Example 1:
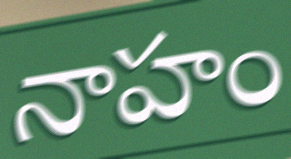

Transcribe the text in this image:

నాహం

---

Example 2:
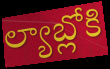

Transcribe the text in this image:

ల్యాబ్లోకి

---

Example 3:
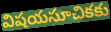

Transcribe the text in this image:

విషయసూచికకు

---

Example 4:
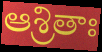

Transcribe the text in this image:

ఆశ్రితాః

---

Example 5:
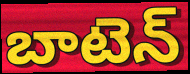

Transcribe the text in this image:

బాటెన్